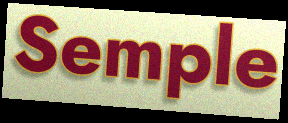
Semple